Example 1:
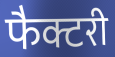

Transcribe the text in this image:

फैक्टरी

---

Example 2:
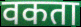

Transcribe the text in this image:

वकता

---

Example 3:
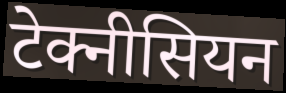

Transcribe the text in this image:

टेक्नीसियन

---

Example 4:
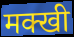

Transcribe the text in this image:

मक्खी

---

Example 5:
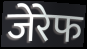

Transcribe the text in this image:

जेरेफ